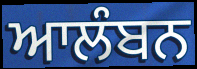
ਆਲੰਬਨ